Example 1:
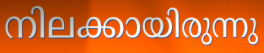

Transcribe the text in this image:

നിലക്കായിരുന്നു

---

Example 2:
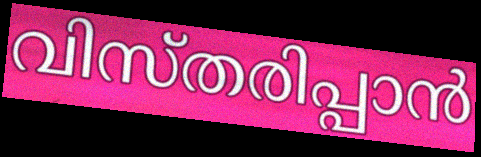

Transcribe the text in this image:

വിസ്തരിപ്പാൻ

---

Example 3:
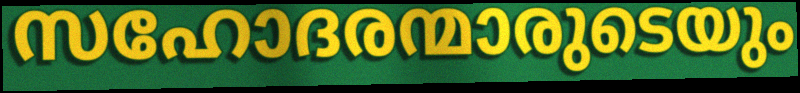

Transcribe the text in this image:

സഹോദരന്മാരുടെയും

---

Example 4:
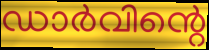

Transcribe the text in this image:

ഡാർവിന്റെ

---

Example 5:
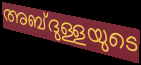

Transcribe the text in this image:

അബ്ദുള്ളയുടെ